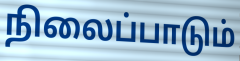
நிலைப்பாடும்